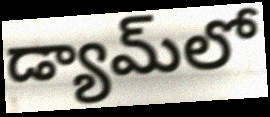
డ్యామ్‌లో